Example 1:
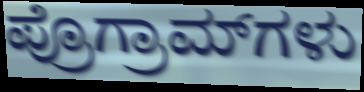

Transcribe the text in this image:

ಪ್ರೊಗ್ರಾಮ್‌ಗಳು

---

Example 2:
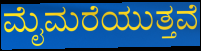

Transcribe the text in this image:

ಮೈಮರೆಯುತ್ತವೆ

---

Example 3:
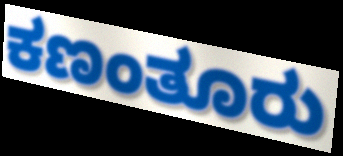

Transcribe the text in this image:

ಕಣಂತೂರು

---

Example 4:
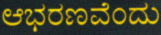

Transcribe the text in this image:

ಆಭರಣವೆಂದು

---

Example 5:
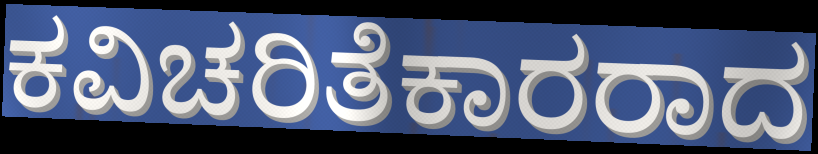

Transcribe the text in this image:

ಕವಿಚರಿತೆಕಾರರಾದ